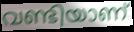
വണ്ടിയാണ്